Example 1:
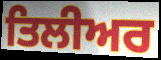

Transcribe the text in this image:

ਤਿਲੀਅਰ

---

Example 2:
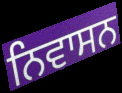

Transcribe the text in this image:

ਨਿਵਾਸਨ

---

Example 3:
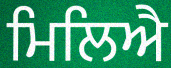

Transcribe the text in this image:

ਮਿਲਿਐ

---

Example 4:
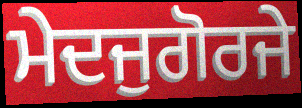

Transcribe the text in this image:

ਮੇਦਜੁਗੋਰਜੇ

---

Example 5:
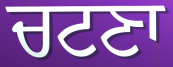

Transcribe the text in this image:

ਚਟਣਾ